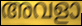
അവളാ